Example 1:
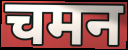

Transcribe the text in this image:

चमन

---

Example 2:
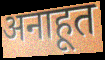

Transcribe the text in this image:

अनाहूत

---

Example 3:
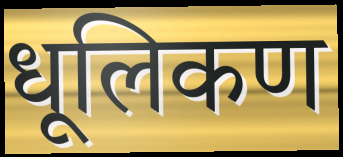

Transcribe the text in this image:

धूलिकण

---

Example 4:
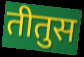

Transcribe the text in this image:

तीतुस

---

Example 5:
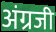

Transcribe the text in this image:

अंग्रजी